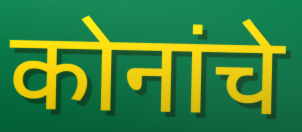
कोनांचे